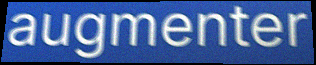
augmenter